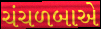
ચંચળબાએ